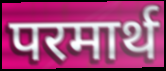
परमार्थ